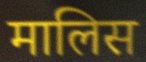
मालिस